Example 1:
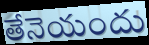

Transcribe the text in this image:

తేనెయందు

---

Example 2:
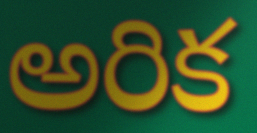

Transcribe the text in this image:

అరిక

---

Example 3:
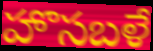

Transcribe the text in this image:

హొసబళే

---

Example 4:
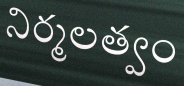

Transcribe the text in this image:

నిర్మలత్వం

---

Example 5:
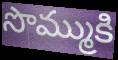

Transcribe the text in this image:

సొమ్ముకి